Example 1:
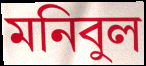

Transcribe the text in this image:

মনিবুল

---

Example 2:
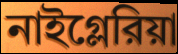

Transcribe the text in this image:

নাইগ্লেরিয়া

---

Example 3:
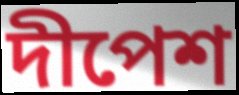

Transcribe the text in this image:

দীপেশ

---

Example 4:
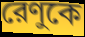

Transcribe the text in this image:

রেণুকে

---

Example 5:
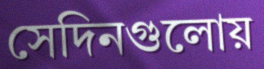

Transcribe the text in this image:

সেদিনগুলোয়